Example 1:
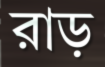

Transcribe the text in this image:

রাড়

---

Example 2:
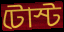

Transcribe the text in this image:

টোস্ট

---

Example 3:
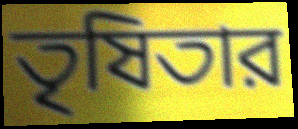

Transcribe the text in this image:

তৃষিতার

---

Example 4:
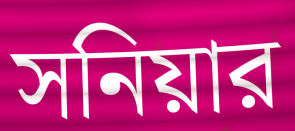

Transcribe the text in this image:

সনিয়ার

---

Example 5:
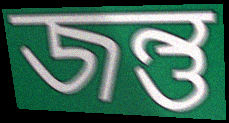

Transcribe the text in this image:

জন্তু